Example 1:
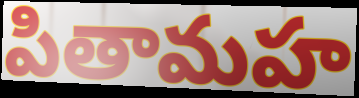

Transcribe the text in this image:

పితామహ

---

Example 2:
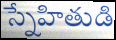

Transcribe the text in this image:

స్నేహితుడి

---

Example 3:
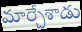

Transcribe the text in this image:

మార్చేశాడు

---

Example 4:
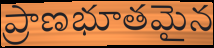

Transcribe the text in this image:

ప్రాణభూతమైన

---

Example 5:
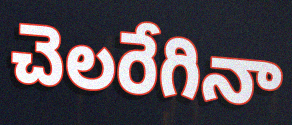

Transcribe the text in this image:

చెలరేగినా